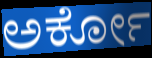
ಅರ್ಕೋ